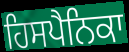
ਹਿਸਪੈਨਿਕਾ